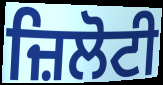
ਜ਼ਿਲੋਟੀ